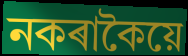
নকৰাকৈয়ে